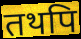
तथपि